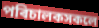
পৰিচালকসকলে